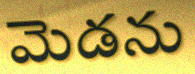
మెడను